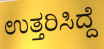
ಉತ್ತರಿಸಿದ್ದೆ